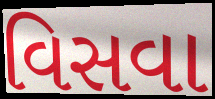
વિસવા